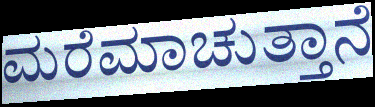
ಮರೆಮಾಚುತ್ತಾನೆ